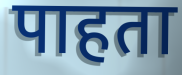
पाहता